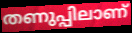
തണുപ്പിലാണ്